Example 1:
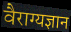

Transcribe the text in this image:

वैराग्यज्ञान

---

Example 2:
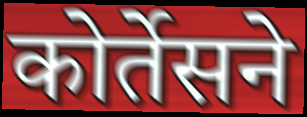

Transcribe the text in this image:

कोर्तेसने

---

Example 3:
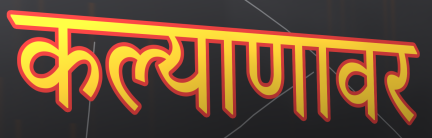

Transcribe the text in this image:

कल्याणावर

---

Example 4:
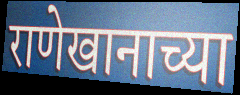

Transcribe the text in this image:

राणेखानाच्या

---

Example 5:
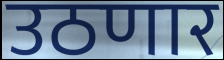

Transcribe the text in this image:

उठणार